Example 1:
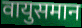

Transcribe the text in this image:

वायुसमान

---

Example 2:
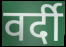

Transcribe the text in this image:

वर्दी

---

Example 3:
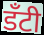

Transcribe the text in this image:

डँटी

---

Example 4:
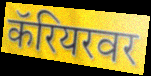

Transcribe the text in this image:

कॅरियरवर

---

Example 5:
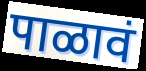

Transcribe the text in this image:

पाळावं